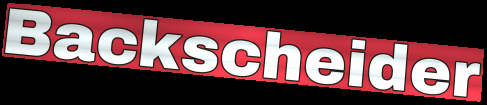
Backscheider